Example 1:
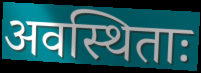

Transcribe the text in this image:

अवस्थिताः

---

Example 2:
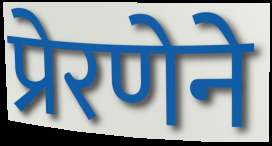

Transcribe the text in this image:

प्रेरणेने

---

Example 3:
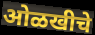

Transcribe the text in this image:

ओळखीचे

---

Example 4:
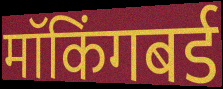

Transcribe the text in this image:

मॉकिंगबर्ड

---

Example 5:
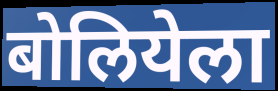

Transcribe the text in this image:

बोलियेला